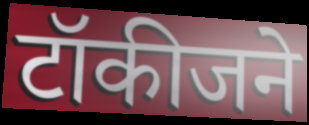
टॉकीजने